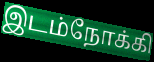
இடம்நோக்கி